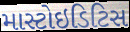
માસ્ટોઇડિટિસ